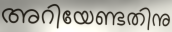
അറിയേണ്ടതിനു